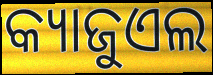
କ୍ୟାଜୁଏଲ